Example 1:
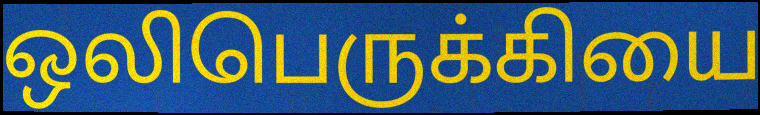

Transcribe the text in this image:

ஒலிபெருக்கியை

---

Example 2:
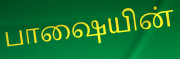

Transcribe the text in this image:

பாஷையின்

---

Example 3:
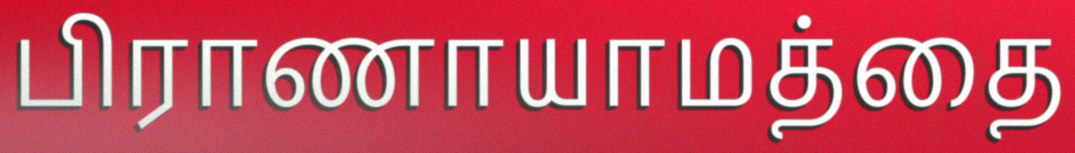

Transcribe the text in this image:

பிராணாயாமத்தை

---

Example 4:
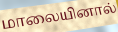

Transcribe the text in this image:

மாலையினால்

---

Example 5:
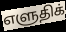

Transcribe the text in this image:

எளுதிக்